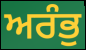
ਅਰੰਭੁ